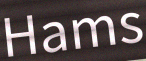
Hams